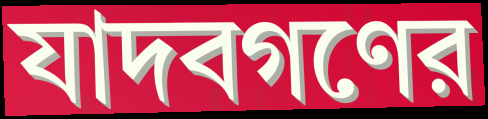
যাদবগণের